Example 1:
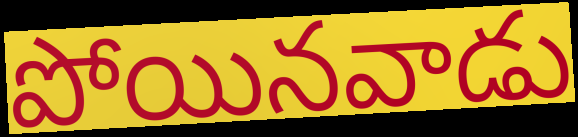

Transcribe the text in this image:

పోయినవాడు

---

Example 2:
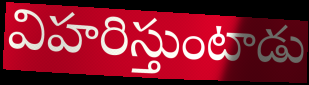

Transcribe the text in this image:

విహరిస్తుంటాడు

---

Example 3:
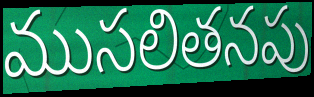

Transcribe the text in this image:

ముసలితనపు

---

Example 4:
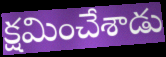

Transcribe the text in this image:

క్షమించేశాడు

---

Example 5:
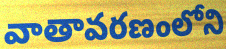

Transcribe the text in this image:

వాతావరణంలోని